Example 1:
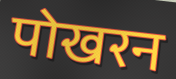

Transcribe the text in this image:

पोखरन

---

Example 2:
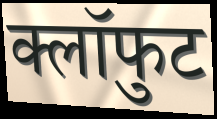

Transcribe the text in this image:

क्लॉफुट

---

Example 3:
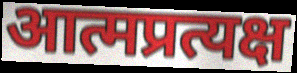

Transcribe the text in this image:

आत्मप्रत्यक्ष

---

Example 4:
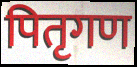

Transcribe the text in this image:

पितृगण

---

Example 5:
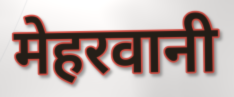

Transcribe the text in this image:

मेहरवानी